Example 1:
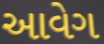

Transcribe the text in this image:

આવેગ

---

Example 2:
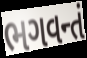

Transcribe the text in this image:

ભગવન્તં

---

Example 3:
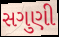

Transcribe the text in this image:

સગુણી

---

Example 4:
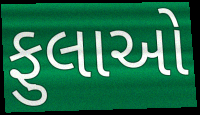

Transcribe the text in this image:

ફુલાઓ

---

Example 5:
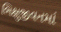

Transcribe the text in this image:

ભિક્ષુજીવનમાં